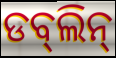
ଡବ୍‌ଲିନ୍